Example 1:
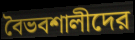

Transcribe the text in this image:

বৈভবশালীদের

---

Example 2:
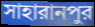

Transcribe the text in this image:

সাহারানপুর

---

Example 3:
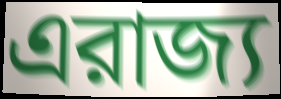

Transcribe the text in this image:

এরাজ্য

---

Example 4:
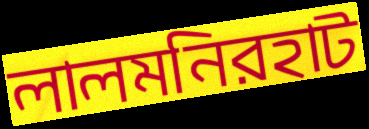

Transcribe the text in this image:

লালমনিরহাট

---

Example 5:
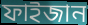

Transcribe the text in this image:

ফাইজান